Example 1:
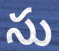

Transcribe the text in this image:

సు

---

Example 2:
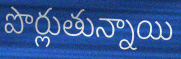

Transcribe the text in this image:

పొర్లుతున్నాయి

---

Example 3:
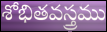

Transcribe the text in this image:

శోభితవస్త్రము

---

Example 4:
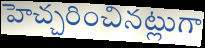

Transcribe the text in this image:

హెచ్చరించినట్లుగా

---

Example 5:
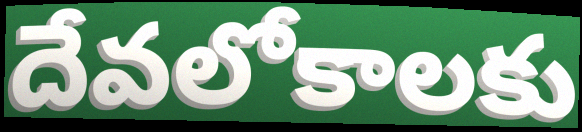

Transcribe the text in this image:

దేవలోకాలకు